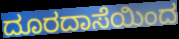
ದೂರದಾಸೆಯಿಂದ